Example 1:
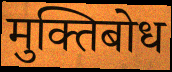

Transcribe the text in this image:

मुक्तिबोध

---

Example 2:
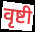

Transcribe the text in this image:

वृष्टी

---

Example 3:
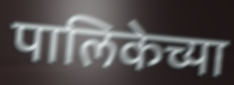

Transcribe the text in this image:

पालिकेच्या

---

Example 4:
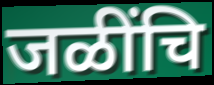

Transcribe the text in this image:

जळींचि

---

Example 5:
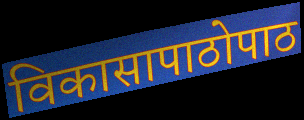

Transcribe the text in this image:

विकासापाठोपाठ